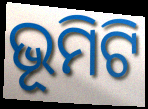
ଭୂମିଟି